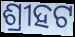
ଶ୍ରୀହଟ